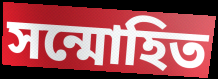
সন্মোহিত